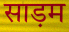
साड़म